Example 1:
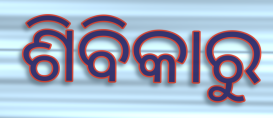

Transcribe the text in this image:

ଶିବିକାରୁ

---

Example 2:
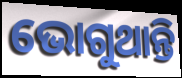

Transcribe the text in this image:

ଭୋଗୁଥାନ୍ତି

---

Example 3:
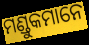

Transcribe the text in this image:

ମଣ୍ଡୁକମାନେ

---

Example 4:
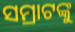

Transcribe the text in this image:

ସମ୍ରାଟଙ୍କୁ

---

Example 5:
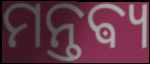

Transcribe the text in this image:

ମନ୍ତଵ୍ୟ